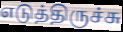
எடுத்திருச்சு